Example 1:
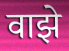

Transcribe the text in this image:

वाझे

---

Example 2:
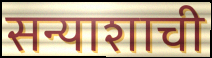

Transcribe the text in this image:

सन्याशाची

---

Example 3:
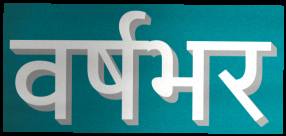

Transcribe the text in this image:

वर्षभर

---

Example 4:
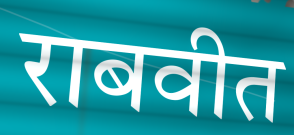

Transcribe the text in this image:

राबवीत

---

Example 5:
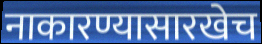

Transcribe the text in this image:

नाकारण्यासारखेच